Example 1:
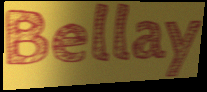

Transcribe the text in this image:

Bellay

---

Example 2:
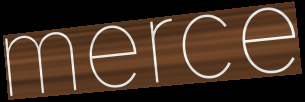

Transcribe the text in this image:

merce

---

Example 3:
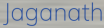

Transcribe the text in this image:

Jaganath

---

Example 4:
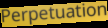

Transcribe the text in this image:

Perpetuation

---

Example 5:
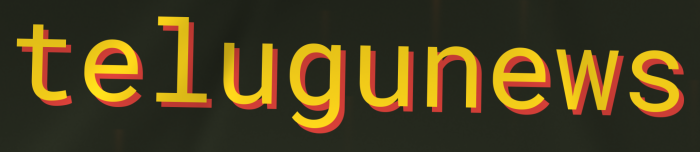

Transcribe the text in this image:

telugunews